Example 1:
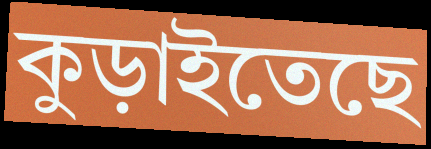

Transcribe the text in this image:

কুড়াইতেছে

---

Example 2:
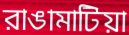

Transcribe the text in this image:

রাঙামাটিয়া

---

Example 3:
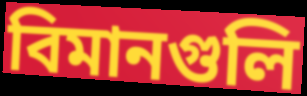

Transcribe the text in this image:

বিমানগুলি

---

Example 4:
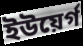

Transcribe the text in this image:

ইউয়ের্গ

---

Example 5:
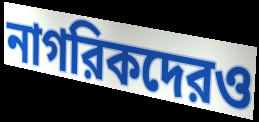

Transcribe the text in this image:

নাগরিকদেরও